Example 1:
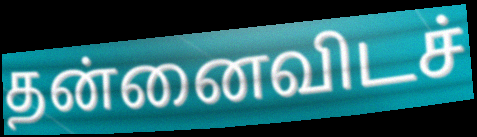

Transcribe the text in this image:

தன்னைவிடச்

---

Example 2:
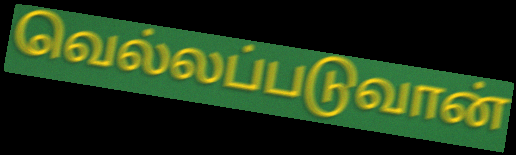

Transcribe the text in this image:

வெல்லப்படுவான்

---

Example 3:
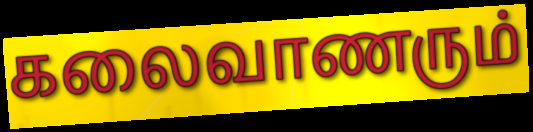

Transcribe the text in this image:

கலைவாணரும்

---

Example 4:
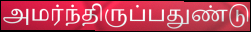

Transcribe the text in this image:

அமர்ந்திருப்பதுண்டு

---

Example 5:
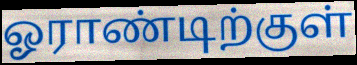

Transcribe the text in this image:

ஓராண்டிற்குள்